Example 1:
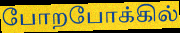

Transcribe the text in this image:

போறபோக்கில்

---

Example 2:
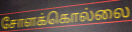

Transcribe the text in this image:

சோளக்கொல்லை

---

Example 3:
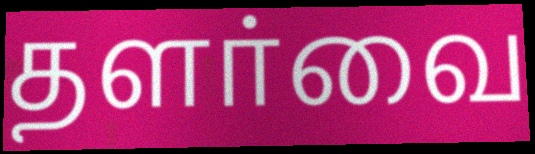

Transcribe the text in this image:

தளர்வை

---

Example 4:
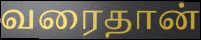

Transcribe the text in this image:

வரைதான்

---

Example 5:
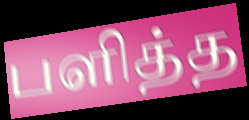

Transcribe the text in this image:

பளித்த